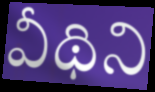
వీథిని